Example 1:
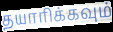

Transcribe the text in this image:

தயாரிக்கவும்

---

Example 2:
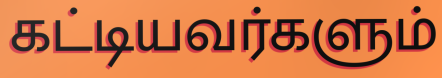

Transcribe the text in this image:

கட்டியவர்களும்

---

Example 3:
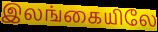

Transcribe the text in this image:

இலங்கையிலே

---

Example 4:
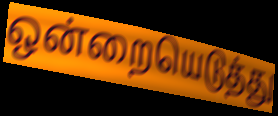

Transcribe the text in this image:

ஒன்றையெடுத்து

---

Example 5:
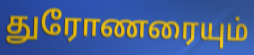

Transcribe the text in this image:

துரோணரையும்